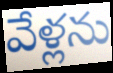
వేళ్లను